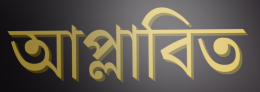
আপ্লাবিত